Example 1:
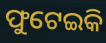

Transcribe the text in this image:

ଫୁଟେଇକି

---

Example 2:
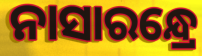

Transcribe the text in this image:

ନାସାରନ୍ଧ୍ରେ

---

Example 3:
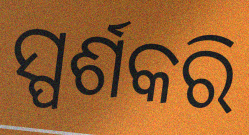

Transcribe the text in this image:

ସ୍ପର୍ଶକରି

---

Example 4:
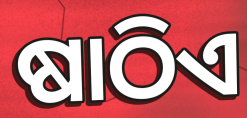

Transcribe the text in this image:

ଷାଠିଏ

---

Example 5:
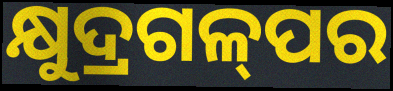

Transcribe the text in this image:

କ୍ଷୁଦ୍ରଗଳ୍‌ପର